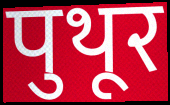
पुथूर